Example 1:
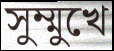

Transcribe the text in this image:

সুম্মুখে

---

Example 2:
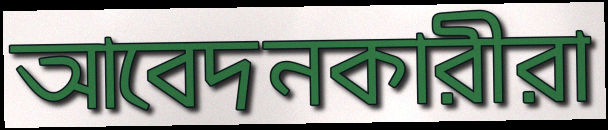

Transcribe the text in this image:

আবেদনকারীরা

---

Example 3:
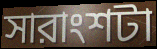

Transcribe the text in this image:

সারাংশটা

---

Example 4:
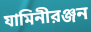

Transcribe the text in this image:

যামিনীরঞ্জন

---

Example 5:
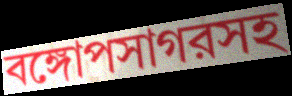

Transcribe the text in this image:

বঙ্গোপসাগরসহ